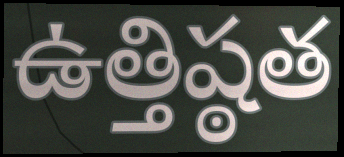
ఉత్తిష్ఠత